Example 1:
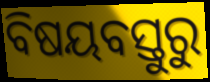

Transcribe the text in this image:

ବିଷୟବସ୍ତୁରୁ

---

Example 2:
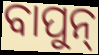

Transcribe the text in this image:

ବାପୁନ୍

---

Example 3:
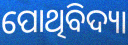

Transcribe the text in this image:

ପୋଥିବିଦ୍ୟା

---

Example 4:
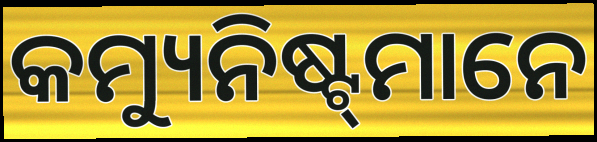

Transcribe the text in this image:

କମ୍ୟୁନିଷ୍ଟ୍‌ମାନେ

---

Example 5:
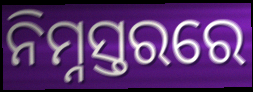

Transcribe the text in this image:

ନିମ୍ନସ୍ତରରେ